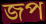
জপ